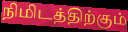
நிமிடத்திற்கும்